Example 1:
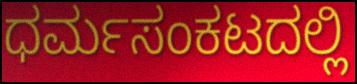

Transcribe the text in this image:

ಧರ್ಮಸಂಕಟದಲ್ಲಿ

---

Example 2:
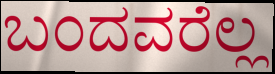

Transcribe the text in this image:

ಬಂದವರೆಲ್ಲ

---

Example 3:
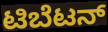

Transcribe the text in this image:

ಟಿಬೆಟನ್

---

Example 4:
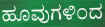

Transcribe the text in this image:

ಹೂವುಗಳಿಂದ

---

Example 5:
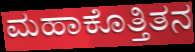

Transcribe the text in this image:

ಮಹಾಕೊತ್ತಿತನ